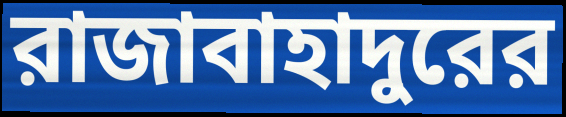
রাজাবাহাদুরের